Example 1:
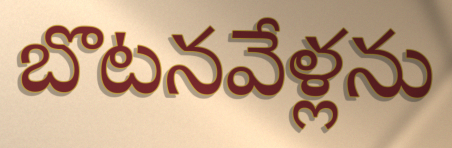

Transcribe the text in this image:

బొటనవేళ్లను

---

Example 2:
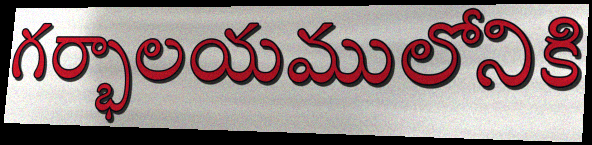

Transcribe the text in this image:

గర్భాలయములోనికి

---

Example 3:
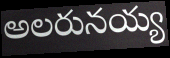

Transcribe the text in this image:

అలరునయ్య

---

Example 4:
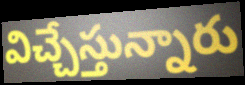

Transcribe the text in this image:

విచ్చేస్తున్నారు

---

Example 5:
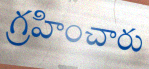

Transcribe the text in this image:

గ్రహించారు